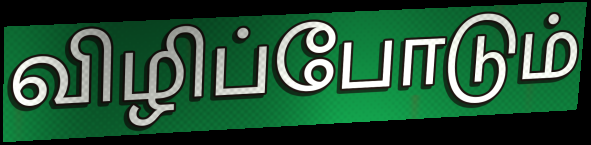
விழிப்போடும்